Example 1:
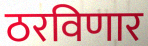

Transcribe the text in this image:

ठरविणार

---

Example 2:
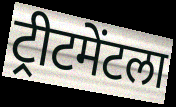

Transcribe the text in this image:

ट्रीटमेंटला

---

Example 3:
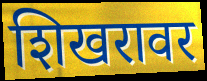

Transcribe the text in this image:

शिखरावर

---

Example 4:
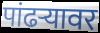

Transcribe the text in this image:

पांढर्‍यावर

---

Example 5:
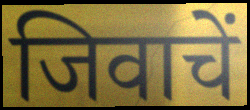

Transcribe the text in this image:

जिवाचें